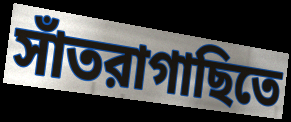
সাঁতরাগাছিতে